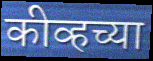
कीव्हच्या